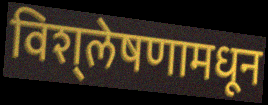
विश्लेषणामधून